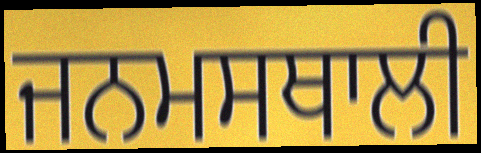
ਜਨਮਸਥਾਲੀ